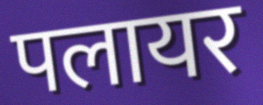
पलायर